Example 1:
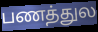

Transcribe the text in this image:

பணத்துல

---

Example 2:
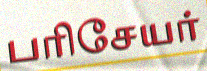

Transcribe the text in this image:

பரிசேயர்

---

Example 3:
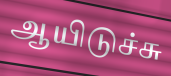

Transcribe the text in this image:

ஆயிடுச்சு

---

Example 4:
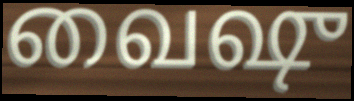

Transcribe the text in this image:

வைஷு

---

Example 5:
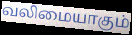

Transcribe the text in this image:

வலிமையாகும்